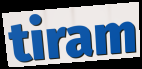
tiram